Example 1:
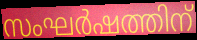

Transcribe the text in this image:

സംഘർഷത്തിന്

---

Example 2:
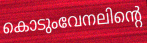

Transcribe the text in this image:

കൊടുംവേനലിന്റെ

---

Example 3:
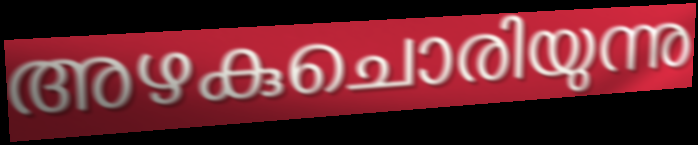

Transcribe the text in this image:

അഴകുചൊരിയുന്നു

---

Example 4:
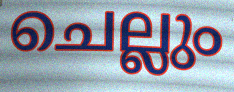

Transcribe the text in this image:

ചെല്ലും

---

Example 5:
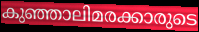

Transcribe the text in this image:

കുഞ്ഞാലിമരക്കാരുടെ